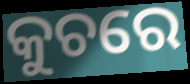
କୁଚରେ